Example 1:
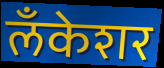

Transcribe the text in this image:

लँकेशर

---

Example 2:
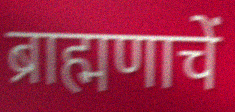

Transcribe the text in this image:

ब्राह्मणाचें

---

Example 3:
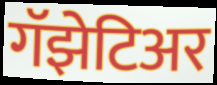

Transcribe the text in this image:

गॅझेटिअर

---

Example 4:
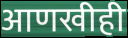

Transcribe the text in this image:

आणखीही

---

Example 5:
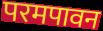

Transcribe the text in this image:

परमपावन